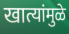
खात्यांमुळे